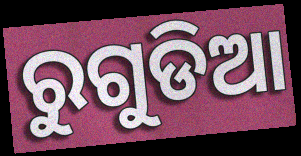
ରୁଗୁଡିଆ